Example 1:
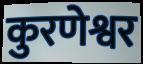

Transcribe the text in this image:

कुरणेश्वर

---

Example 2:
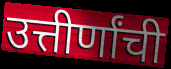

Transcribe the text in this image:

उत्तीर्णांची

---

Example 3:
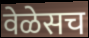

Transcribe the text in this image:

वेळेसच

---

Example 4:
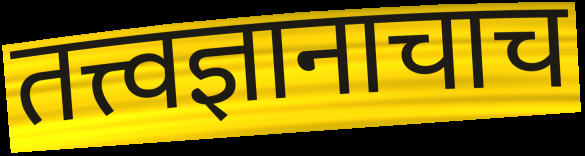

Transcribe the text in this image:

तत्त्वज्ञानाचाच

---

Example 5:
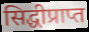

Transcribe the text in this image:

सिद्धीप्राप्त